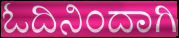
ಓದಿನಿಂದಾಗಿ